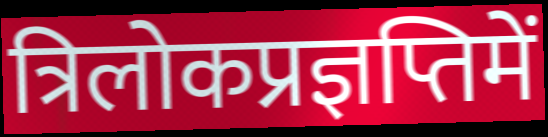
त्रिलोकप्रज्ञप्तिमें